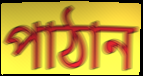
পাঠান